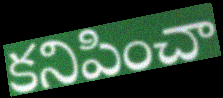
కనిపించా